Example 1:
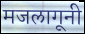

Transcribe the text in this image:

मजलागूनी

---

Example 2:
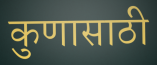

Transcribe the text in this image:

कुणासाठी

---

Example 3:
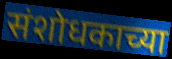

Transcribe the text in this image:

संशोधकाच्या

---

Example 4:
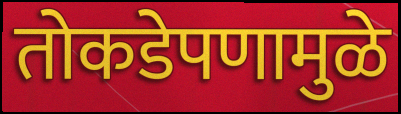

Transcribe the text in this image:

तोकडेपणामुळे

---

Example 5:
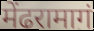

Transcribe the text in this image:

मेंढरामागं